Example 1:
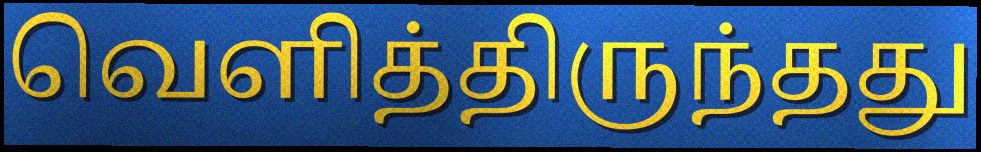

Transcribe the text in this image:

வெளித்திருந்தது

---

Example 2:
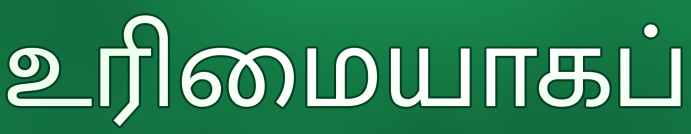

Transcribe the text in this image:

உரிமையாகப்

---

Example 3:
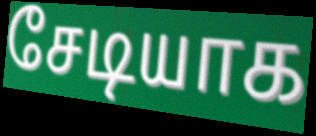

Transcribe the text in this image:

சேடியாக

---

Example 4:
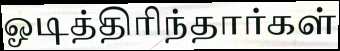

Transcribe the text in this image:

ஓடித்திரிந்தார்கள்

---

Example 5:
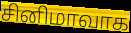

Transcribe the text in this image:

சினிமாவாக